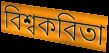
বিশ্বকবিতা